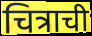
चित्राची